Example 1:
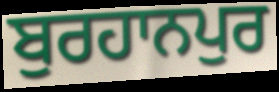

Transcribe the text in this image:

ਬੁਰਹਾਨਪੁਰ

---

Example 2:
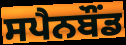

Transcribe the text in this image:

ਸਪੈਨਬੌਂਡ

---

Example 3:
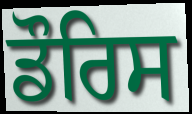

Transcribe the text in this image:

ਡੌਰਿਸ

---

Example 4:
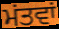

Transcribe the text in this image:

ਮਂਤਵਾਂ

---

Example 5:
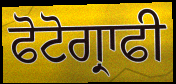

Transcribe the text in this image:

ਫੋਟੋਗ੍ਰਾਫੀ